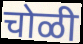
चोळी